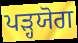
ਪੜ੍ਹਯੋਗ